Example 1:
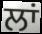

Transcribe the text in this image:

ਲਾਂ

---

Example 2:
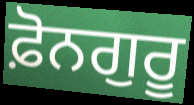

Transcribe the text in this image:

ਫ਼ੋਨਗੁਰੂ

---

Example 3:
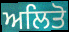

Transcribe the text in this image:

ਅਲਿਤੋ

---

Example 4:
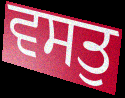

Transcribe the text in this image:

ਵਸਤੁ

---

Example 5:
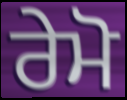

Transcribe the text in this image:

ਰੇਮੋ